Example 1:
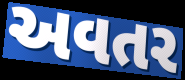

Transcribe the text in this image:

અવતર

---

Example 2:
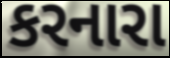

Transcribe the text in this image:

કરનારા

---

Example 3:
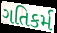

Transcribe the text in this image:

ગતિકર્મ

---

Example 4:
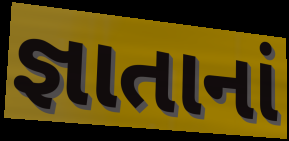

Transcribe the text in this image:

જ્ઞાતાનાં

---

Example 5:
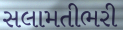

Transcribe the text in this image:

સલામતીભરી